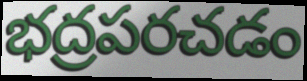
భద్రపరచడం